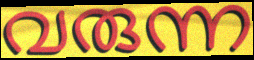
വരുന്ന